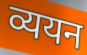
व्ययन